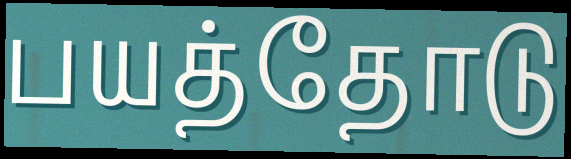
பயத்தோடு